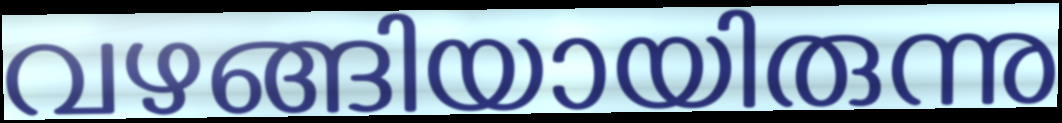
വഴങ്ങിയായിരുന്നു